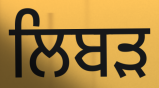
ਲਿਬੜ